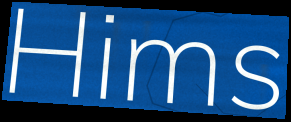
Hims